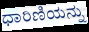
ಧಾರಿಣಿಯನ್ನು